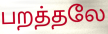
பறத்தலே